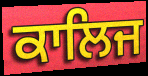
ਕਾਲਿਜ